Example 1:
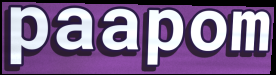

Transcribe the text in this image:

paapom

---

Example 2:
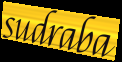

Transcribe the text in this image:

sudraba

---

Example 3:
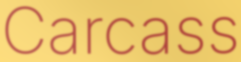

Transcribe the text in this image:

Carcass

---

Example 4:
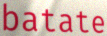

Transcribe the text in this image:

batate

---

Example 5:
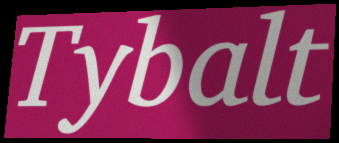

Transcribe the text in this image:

Tybalt